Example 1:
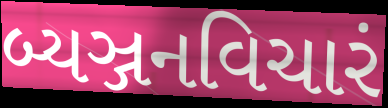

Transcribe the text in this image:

બ્યઞ્જનવિચારં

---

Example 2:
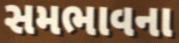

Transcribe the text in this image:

સમભાવના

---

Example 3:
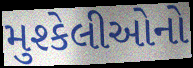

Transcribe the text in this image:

મુશ્કેલીઓનો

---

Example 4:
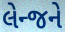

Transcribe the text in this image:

લેન્જને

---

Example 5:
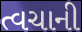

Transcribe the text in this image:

ત્વચાની